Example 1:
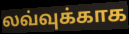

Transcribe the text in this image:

லவ்வுக்காக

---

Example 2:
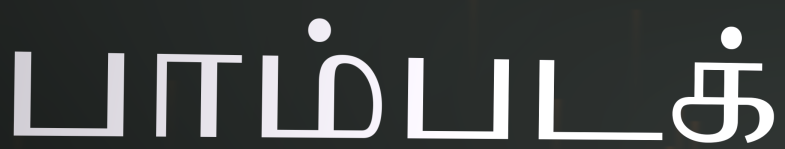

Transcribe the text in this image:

பாம்படக்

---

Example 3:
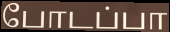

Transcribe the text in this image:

போடப்பா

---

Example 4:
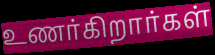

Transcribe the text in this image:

உணர்கிறார்கள்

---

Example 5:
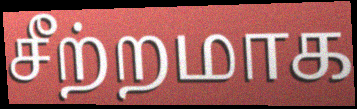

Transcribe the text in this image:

சீற்றமாக